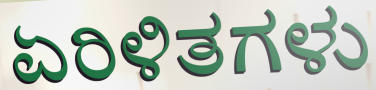
ಏರಿಳಿತಗಳು